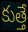
కుత్తే